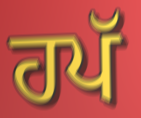
ਹਪੱ